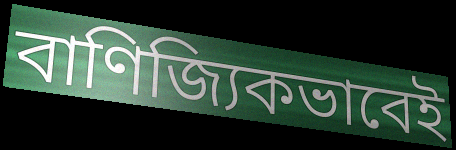
বাণিজ্যিকভাবেই